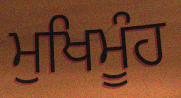
ਮੁਖਿਮੂੰਹ